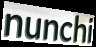
nunchi